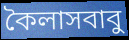
কৈলাসবাবু